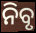
ନିବୃ